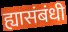
ह्यासंबंधी